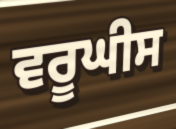
ਵਰੂਘੀਸ